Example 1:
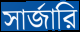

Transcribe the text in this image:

সার্জারি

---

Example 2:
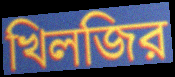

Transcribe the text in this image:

খিলজির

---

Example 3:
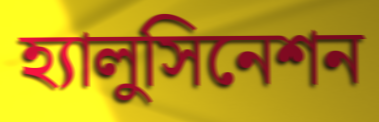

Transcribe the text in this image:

হ্যালুসিনেশন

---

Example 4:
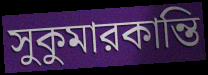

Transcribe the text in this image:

সুকুমারকান্তি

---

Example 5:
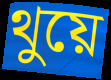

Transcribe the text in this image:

থুয়ে